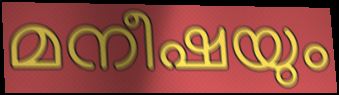
മനീഷയും